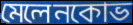
মেলেনকোভ